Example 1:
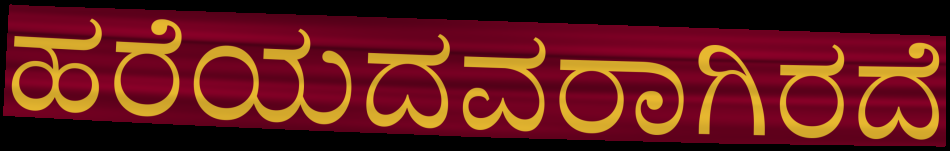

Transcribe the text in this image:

ಹರೆಯದವರಾಗಿರದೆ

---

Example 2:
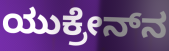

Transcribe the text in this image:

ಯುಕ್ರೇನ್‌ನ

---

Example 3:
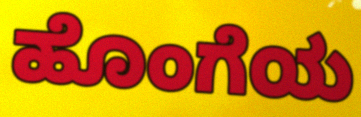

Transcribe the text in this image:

ಹೊಂಗೆಯ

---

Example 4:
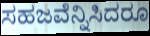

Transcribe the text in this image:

ಸಹಜವೆನ್ನಿಸಿದರೂ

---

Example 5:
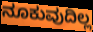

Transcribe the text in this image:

ನೂಕುವುದಿಲ್ಲ